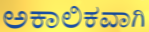
ಅಕಾಲಿಕವಾಗಿ